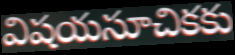
విషయసూచికకు